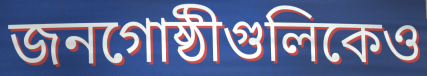
জনগোষ্ঠীগুলিকেও